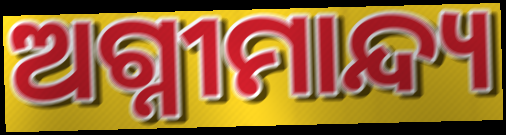
ଅଗ୍ନୀମାନ୍ଦ୍ୟ